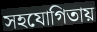
সহযোগিতায়